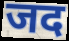
जद